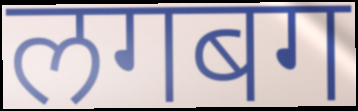
लगबग